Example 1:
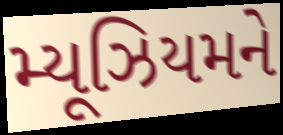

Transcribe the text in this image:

મ્યૂઝિયમને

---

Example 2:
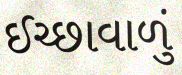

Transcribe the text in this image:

ઈચ્છાવાળું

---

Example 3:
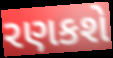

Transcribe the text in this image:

રણકશે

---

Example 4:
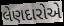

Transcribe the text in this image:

લેણદારોએ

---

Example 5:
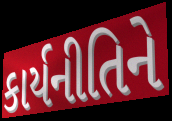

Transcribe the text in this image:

કાર્યનીતિને